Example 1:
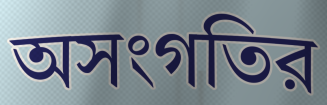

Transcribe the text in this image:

অসংগতির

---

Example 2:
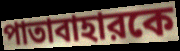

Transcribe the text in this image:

পাতাবাহারকে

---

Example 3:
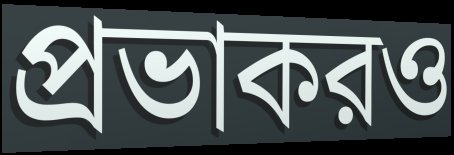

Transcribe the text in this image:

প্রভাকরও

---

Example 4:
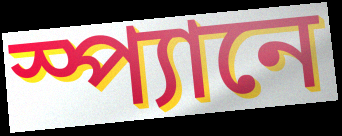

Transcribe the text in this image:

স্প্যানে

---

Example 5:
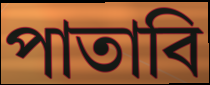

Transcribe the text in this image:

পাতাবি